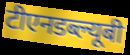
टीएनडब्ल्यूबी